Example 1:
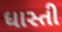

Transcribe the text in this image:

ધાસ્તી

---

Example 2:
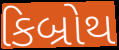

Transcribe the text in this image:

કિબ્રોથ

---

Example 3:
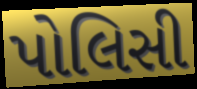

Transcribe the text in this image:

પોલિસી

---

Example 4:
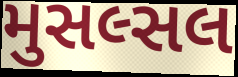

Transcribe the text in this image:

મુસલ્સલ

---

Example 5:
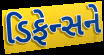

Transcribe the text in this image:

ડિફેન્સને